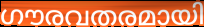
ഗൗരവതരമായി